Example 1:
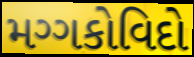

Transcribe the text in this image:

મગ્ગકોવિદો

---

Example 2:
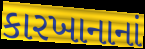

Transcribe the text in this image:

કારખાનાનાં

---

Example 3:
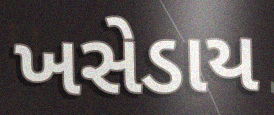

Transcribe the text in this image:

ખસેડાય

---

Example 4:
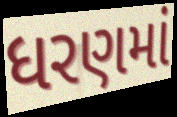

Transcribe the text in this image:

ધરણમાં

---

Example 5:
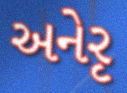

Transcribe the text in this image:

અનેરૃ